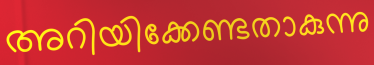
അറിയിക്കേണ്ടതാകുന്നു